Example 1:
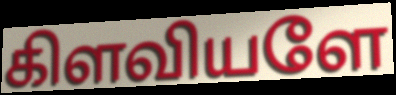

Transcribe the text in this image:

கிளவியளே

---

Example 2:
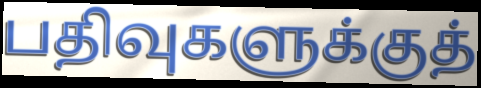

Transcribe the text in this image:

பதிவுகளுக்குத்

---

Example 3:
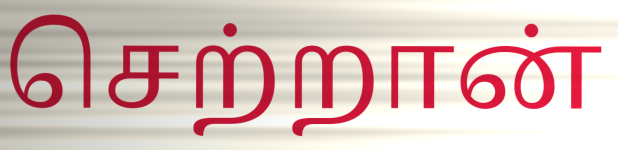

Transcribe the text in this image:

செற்றான்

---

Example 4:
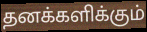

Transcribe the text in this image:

தனக்களிக்கும்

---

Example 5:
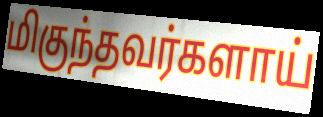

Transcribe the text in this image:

மிகுந்தவர்களாய்